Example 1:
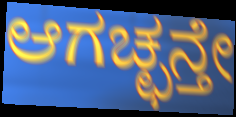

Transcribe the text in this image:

ಆಗಚ್ಛನ್ತೇ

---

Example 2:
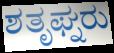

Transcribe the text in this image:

ಶತೃಘ್ನರು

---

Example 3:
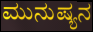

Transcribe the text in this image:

ಮುನುಷ್ಯನ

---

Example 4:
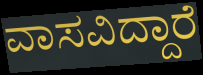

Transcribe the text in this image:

ವಾಸವಿದ್ದಾರೆ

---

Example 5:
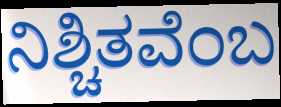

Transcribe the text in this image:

ನಿಶ್ಚಿತವೆಂಬ